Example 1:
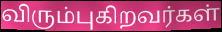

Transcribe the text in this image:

விரும்புகிறவர்கள்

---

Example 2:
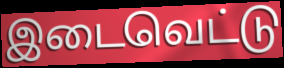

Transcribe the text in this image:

இடைவெட்டு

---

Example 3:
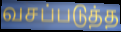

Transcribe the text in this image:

வசப்படுத்த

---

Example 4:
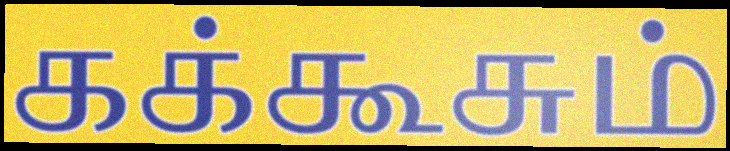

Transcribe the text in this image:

கக்கூசும்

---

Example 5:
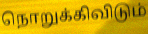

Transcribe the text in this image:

நொறுக்கிவிடும்